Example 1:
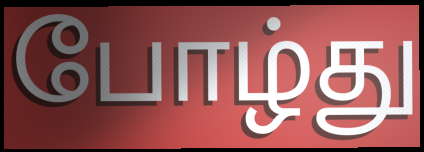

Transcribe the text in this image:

போழ்து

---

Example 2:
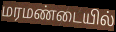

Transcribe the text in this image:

மரமண்டையில்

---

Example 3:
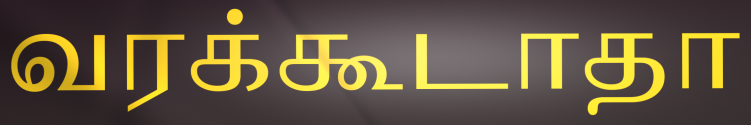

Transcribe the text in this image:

வரக்கூடாதா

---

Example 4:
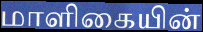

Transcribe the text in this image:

மாளிகையின்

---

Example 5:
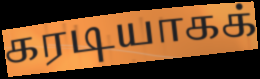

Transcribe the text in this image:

கரடியாகக்